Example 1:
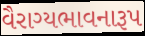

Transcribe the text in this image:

વૈરાગ્યભાવનારૂપ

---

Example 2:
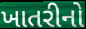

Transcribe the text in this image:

ખાતરીનો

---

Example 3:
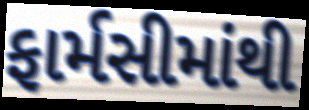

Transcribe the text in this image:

ફાર્મસીમાંથી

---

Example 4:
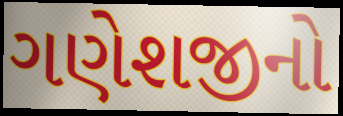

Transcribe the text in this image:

ગણેશજીનો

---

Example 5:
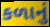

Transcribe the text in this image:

કળાનું